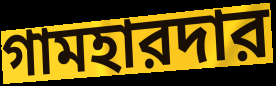
গামহারদার